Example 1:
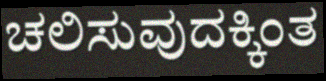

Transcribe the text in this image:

ಚಲಿಸುವುದಕ್ಕಿಂತ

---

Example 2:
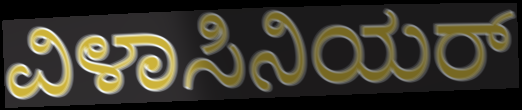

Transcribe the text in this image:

ವಿಳಾಸಿನಿಯರ್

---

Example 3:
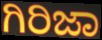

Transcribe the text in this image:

ಗಿರಿಜಾ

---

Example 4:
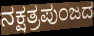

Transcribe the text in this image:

ನಕ್ಷತ್ರಪುಂಜದ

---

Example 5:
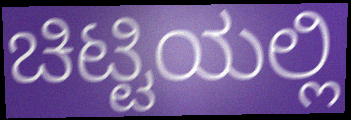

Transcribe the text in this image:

ಚಿಟ್ಟಿಯಲ್ಲಿ